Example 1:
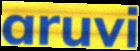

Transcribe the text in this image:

aruvi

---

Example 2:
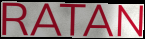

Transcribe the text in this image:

RATAN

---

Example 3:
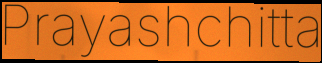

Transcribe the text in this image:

Prayashchitta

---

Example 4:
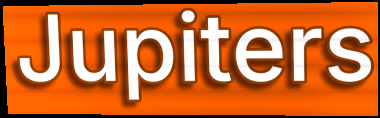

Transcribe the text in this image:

Jupiters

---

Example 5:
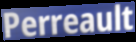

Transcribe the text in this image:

Perreault